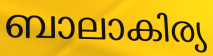
ബാലാകിര്യ